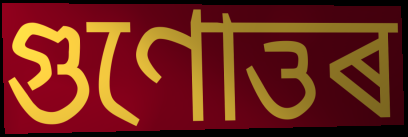
গুণোত্তৰ